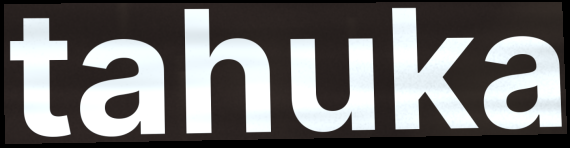
tahuka